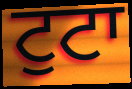
ਟੁਟਾ